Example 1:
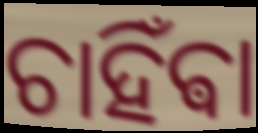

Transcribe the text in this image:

ଚାହିଁଵା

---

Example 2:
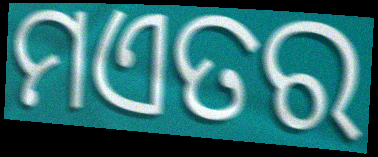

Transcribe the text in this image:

ମଏତର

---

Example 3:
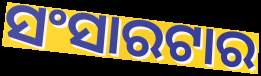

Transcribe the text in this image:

ସଂସାରଟାର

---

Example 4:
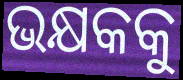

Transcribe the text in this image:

ଭକ୍ଷକକୁ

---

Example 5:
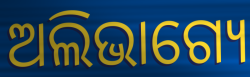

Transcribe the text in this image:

ଅଲିଭାଗ୍ୟେ